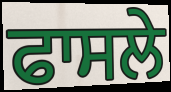
ਫਾਸਲੇ